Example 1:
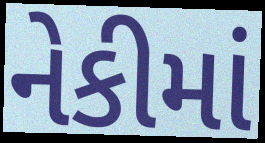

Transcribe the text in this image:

નેકીમાં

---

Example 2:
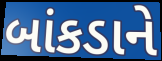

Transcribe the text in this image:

બાંકડાને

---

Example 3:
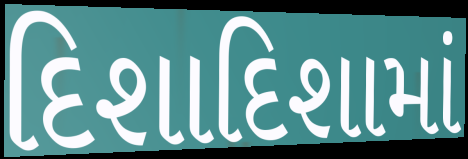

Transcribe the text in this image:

દિશાદિશામાં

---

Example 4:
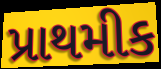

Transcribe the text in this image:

પ્રાથમીક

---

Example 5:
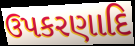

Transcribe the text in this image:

ઉપકરણાદિ